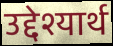
उद्देश्यार्थ